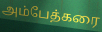
அம்பேத்கரை